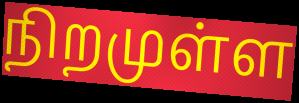
நிறமுள்ள